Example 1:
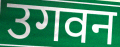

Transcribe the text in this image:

उगवन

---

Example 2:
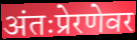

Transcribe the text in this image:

अंतःप्रेरणेवर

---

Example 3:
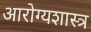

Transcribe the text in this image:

आरोग्यशास्त्र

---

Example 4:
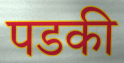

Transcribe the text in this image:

पडकी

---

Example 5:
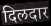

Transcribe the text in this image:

दिलदार